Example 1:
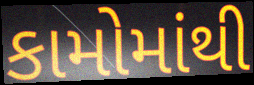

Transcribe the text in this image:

કામોમાંથી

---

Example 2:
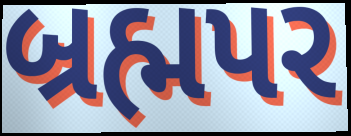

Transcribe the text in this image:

બ્રહ્મપર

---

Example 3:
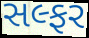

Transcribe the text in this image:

સલ્ફર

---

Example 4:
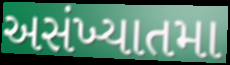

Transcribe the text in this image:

અસંખ્યાતમા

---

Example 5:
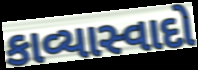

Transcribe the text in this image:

કાવ્યાસ્વાદો